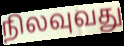
நிலவுவது